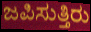
ಜಪಿಸುತ್ತಿರು